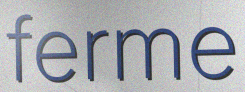
ferme